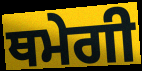
ਥਮੇਗੀ